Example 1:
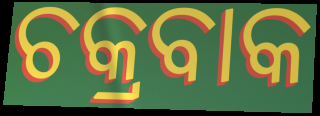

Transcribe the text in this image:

ଚକ୍ରବାକ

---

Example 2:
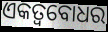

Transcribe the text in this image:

ଏକତ୍ୱବୋଧର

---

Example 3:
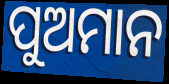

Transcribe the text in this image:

ପୁଅମାନ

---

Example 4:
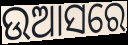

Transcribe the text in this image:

ଉଆସରେ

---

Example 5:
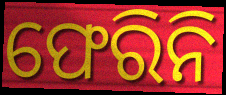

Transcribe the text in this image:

ଫେରିନି